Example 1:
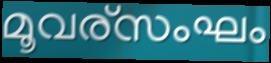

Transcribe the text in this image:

മൂവര്സംഘം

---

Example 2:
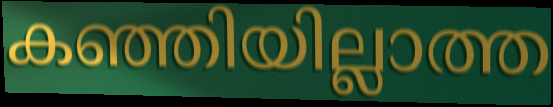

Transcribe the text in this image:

കഞ്ഞിയില്ലാത്ത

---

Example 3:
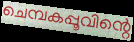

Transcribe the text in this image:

ചെമ്പകപ്പൂവിന്റെ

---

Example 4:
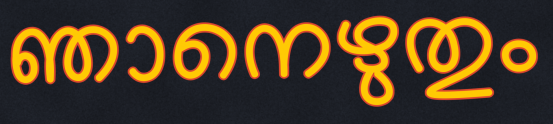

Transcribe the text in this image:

ഞാനെഴുതും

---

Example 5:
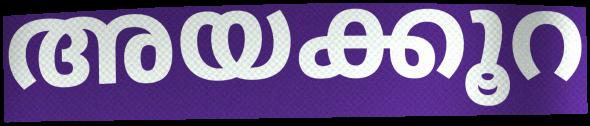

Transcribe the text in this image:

അയക്കൂറ